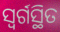
ସ୍ୱର୍ଗସ୍ଥିତ